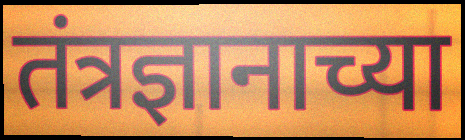
तंत्रज्ञानाच्या